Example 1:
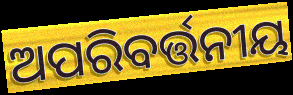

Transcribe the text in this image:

ଅପରିବର୍ତ୍ତନୀୟ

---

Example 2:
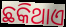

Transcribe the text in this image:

ଛକିଥାଏ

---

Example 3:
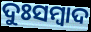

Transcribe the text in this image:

ଦୁଃସମ୍ବାଦ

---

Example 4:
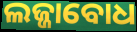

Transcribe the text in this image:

ଲଜ୍ଜାବୋଧ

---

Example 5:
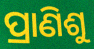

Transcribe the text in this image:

ପ୍ରାଣିଶୁ